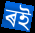
ৰই